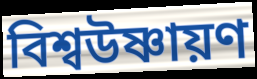
বিশ্বউষ্ণায়ণ